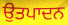
ਉਤਪਾਦਨ